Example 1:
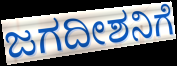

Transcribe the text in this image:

ಜಗದೀಶನಿಗೆ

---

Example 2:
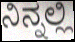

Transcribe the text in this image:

ನಿನ್ನಲ್ಲಿ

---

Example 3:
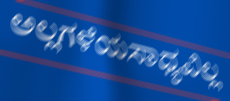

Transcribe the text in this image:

ಅಲ್ಲಗಳೆಯಸಾಧ್ಯವಿಲ್ಲ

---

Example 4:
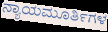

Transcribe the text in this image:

ನ್ಯಾಯಮೂರ್ತಿಗಳ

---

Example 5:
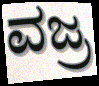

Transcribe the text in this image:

ವಜ್ರ